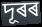
দূৰৰ